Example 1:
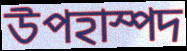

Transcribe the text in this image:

উপহাস্পদ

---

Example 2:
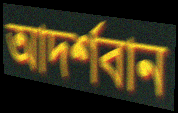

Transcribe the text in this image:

আদর্শবান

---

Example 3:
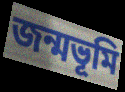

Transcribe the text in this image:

জন্মভূমি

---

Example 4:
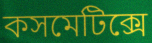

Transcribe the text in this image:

কসমেটিক্সে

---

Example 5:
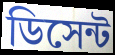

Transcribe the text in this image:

ডিসেন্ট